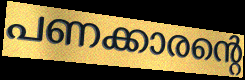
പണക്കാരന്റെ